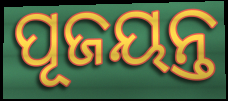
ପୂଜୟନ୍ତ